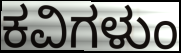
ಕವಿಗಳುಂ